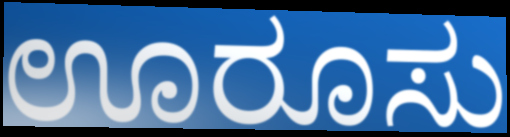
ಊರೂಸು